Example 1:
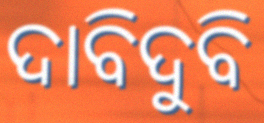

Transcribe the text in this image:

ଦାବିଦୁବି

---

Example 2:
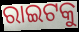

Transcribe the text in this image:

ରାଇଟକୁ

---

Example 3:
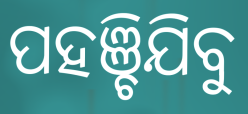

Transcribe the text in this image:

ପହଞ୍ଚିଯିବୁ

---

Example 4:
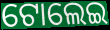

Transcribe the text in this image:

ଟୋଲେଇ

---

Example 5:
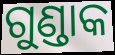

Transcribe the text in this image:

ଗୁଣ୍ଡାକ